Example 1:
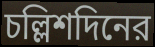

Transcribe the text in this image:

চল্লিশদিনের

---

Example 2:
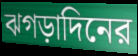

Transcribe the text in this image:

ঝগড়াদিনের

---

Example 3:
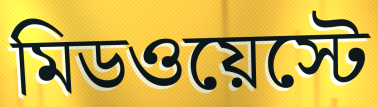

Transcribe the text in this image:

মিডওয়েস্টে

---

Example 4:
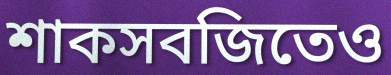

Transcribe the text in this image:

শাকসবজিতেও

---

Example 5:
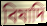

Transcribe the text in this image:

বিষাদি